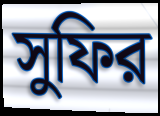
সুফির